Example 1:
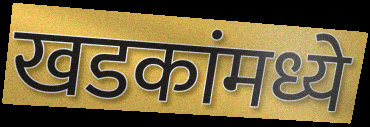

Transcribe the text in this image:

खडकांमध्ये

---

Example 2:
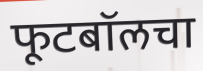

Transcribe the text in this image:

फूटबॉलचा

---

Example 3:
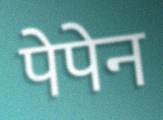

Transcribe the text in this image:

पेपेन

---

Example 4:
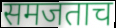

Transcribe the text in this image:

समजताच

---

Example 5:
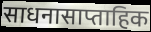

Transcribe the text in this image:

साधनासाप्ताहिक